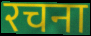
रचना